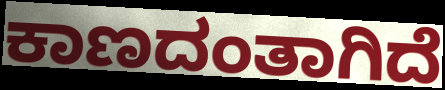
ಕಾಣದಂತಾಗಿದೆ